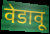
वेडावू